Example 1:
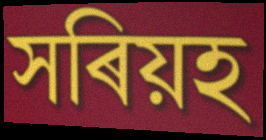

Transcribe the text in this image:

সৰিয়হ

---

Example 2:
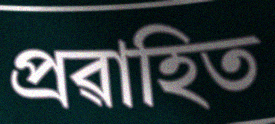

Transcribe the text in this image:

প্ৰৱাহিত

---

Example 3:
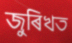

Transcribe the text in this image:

জুৰিখত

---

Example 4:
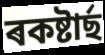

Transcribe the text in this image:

ৰকষ্টাৰ্ছ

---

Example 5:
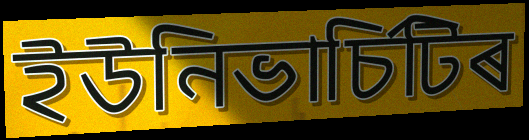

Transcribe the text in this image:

ইউনিভাৰ্চিটিৰ